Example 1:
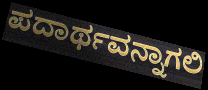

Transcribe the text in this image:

ಪದಾರ್ಥವನ್ನಾಗಲಿ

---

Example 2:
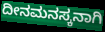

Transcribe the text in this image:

ದೀನಮನಸ್ಕನಾಗಿ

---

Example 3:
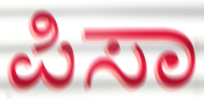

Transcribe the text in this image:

ಪಿಸಾ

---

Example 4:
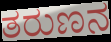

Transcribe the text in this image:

ತರುಣನ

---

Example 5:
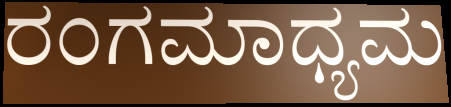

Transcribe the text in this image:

ರಂಗಮಾಧ್ಯಮ